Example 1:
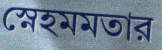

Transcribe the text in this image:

স্নেহমমতার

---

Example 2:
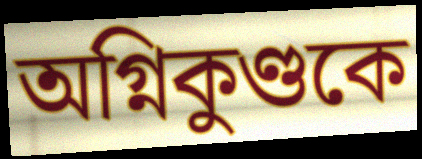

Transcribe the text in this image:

অগ্নিকুণ্ডকে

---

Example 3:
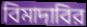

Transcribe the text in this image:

বিমাদাবির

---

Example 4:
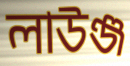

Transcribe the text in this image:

লাউঞ্জ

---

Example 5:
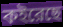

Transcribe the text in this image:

কইরেছে